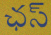
ఛస్